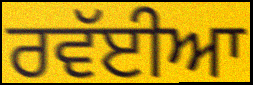
ਰਵੱਈਆ